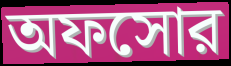
অফসোর